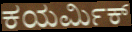
ಕಯರ್ಮಿಕ್